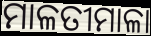
ମାଳତୀମାଳା